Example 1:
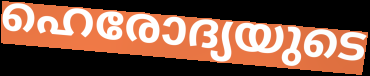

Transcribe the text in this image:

ഹെരോദ്യയുടെ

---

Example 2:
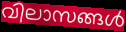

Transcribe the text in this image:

വിലാസങ്ങൾ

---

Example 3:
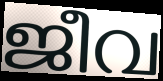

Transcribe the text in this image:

ജീവ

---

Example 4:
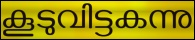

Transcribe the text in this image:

കൂടുവിട്ടകന്നു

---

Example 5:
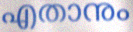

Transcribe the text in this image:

എതാനും